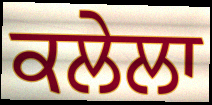
ਕਲੇਲਾ